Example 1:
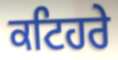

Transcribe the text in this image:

ਕਟਿਹਰੇ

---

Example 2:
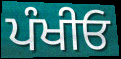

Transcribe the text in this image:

ਪੰਖੀਓ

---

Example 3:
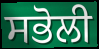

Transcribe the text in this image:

ਸਭੋਲੀ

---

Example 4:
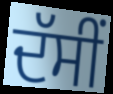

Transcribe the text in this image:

ਦੱਸੀਂ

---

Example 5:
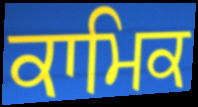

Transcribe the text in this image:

ਕਾਮਿਕ